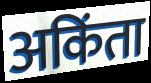
अकिंता